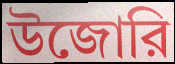
উজোরি